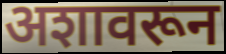
अशावरून